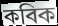
কবিক